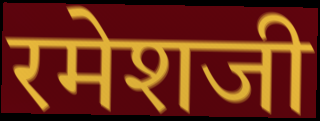
रमेशजी